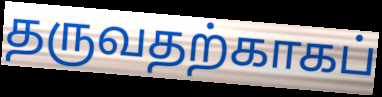
தருவதற்காகப்